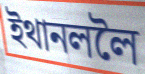
ইথানললৈ